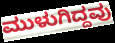
ಮುಳುಗಿದ್ದವು